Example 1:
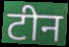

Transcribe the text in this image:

टीन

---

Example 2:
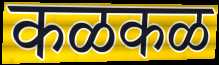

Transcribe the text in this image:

कळकळ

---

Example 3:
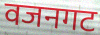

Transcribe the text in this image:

वजनगट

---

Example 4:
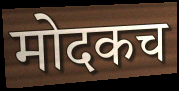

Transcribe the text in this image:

मोदकच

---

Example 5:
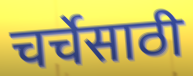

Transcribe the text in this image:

चर्चेसाठी